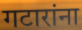
गटारांना